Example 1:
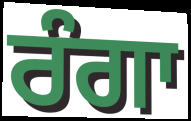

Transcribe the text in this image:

ਰੰਗਾ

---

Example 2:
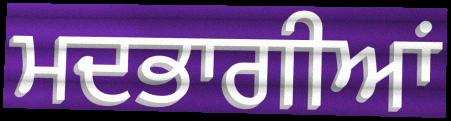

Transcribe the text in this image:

ਮਦਭਾਗੀਆਂ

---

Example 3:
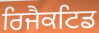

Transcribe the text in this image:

ਰਿਜੈਕਟਿਡ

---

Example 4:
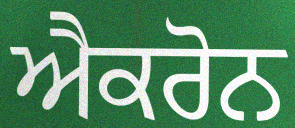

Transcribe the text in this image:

ਐਕਰੋਨ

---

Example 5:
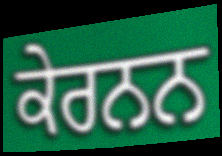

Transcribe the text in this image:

ਕੇਰਨਨ